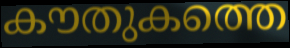
കൗതുകത്തെ